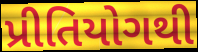
પ્રીતિયોગથી